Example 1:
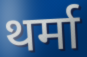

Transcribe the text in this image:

थर्मा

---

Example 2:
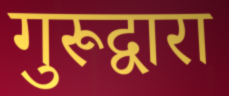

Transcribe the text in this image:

गुरूद्वारा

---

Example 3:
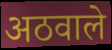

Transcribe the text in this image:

अठवाले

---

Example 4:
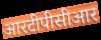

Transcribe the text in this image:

आरटीपीसीआर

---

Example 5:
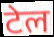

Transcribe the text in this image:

टेल